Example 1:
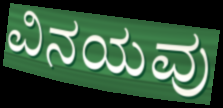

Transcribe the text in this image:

ವಿನಯವು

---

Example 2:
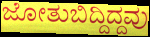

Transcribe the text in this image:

ಜೋತುಬಿದ್ದಿದ್ದವು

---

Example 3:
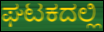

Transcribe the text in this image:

ಘಟಕದಲ್ಲಿ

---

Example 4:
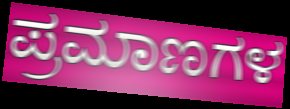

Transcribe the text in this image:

ಪ್ರಮಾಣಗಳ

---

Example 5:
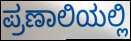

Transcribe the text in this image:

ಪ್ರಣಾಲಿಯಲ್ಲಿ